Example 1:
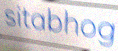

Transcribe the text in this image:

sitabhog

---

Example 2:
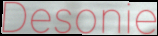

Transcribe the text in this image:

Desonie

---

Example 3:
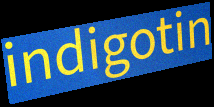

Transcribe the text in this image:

indigotin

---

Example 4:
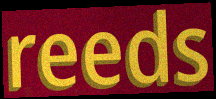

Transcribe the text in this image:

reeds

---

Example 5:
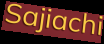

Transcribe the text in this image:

Sajiachi